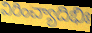
విరించ్యాదిభిః